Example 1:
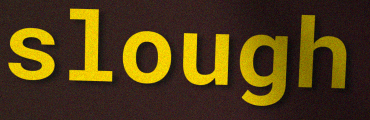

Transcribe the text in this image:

slough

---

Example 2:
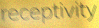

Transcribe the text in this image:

receptivity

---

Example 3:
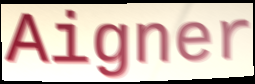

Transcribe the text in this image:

Aigner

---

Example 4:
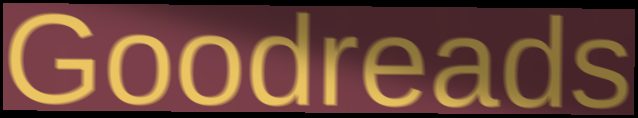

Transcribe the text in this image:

Goodreads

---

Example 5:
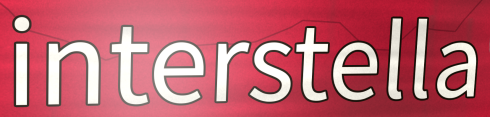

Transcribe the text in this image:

interstella